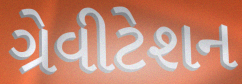
ગ્રેવીટેશન